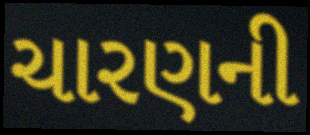
ચારણની